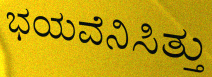
ಭಯವೆನಿಸಿತ್ತು